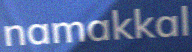
namakkal